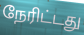
நேரிட்டது